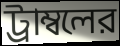
ট্রাম্বলের